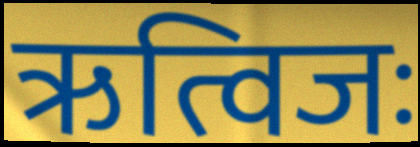
ऋत्विजः